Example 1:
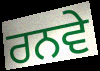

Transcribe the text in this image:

ਰਨਵੇ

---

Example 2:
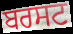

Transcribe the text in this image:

ਬਰਸਟ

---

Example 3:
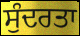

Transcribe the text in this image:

ਸੁੰਦਰਤਾ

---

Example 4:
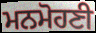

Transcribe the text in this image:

ਮਨਮੋਹਣੀ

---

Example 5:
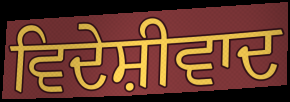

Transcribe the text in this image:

ਵਿਦੇਸ਼ੀਵਾਦ